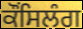
ਕੌਂਸਿਲੰਗ